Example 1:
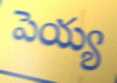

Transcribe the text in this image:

పెయ్య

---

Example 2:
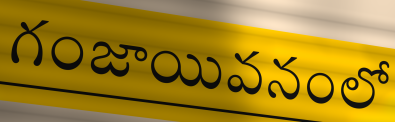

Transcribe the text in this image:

గంజాయివనంలో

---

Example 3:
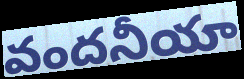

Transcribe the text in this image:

వందనీయా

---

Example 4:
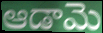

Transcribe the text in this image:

ఆడామె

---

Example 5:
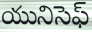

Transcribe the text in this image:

యునిసెఫ్